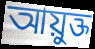
আয়ুক্ত